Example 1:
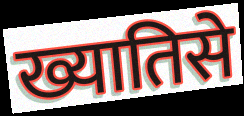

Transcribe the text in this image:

ख्यातिसे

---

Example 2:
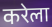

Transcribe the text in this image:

करेला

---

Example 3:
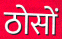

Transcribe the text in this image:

ठोसों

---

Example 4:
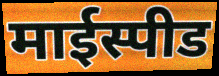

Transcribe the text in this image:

माईस्पीड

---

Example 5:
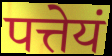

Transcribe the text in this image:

पत्तेयं